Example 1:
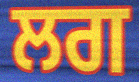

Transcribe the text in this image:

ਲਗ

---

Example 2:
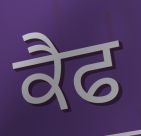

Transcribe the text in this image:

ਕੈਫ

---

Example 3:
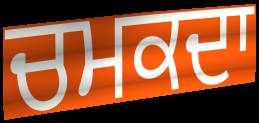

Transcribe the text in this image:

ਚਮਕਦਾ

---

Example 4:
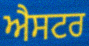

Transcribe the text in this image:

ਐਸਟਰ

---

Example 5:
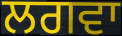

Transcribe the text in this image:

ਲਗਵਾ